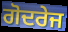
ਗੋਦਰੇਜ